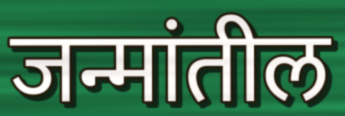
जन्मांतील